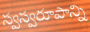
స్వస్వరూపాన్ని